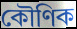
কৌণিক